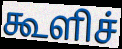
கூளிச்